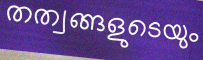
തത്വങ്ങളുടെയും